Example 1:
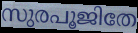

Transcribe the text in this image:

സുരപൂജിതേ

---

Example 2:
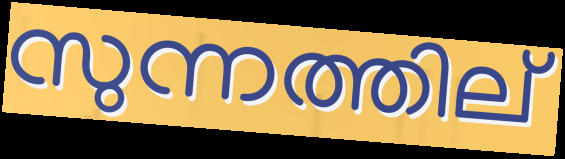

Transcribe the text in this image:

സുന്നത്തില്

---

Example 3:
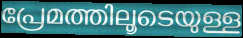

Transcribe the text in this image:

പ്രേമത്തിലൂടെയുള്ള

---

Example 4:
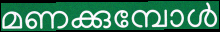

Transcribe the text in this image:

മണക്കുമ്പോൾ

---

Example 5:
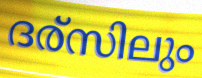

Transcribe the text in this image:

ദര്സിലും